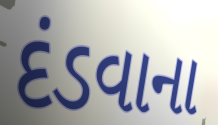
દંડવાના